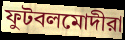
ফুটবলমোদীরা